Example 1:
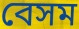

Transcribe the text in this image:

বেসম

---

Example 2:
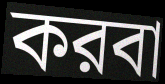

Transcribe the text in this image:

করবা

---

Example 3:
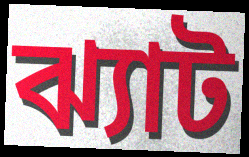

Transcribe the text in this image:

ঝ্যাট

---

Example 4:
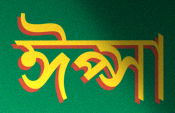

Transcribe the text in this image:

ঈপ্সা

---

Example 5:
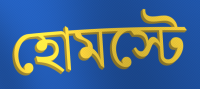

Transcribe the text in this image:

হোমস্টে